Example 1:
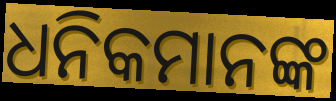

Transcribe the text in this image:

ଧନିକମାନଙ୍କ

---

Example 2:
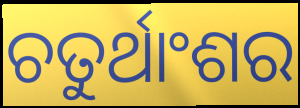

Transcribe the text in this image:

ଚତୁର୍ଥାଂଶର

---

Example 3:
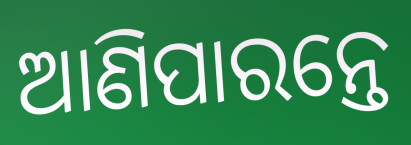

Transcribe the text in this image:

ଆଣିପାରନ୍ତେ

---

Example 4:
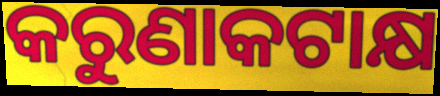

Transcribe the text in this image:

କରୁଣାକଟାକ୍ଷ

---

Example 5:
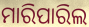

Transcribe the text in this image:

ମାରିପାରିଲ